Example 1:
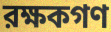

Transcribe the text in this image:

রক্ষকগণ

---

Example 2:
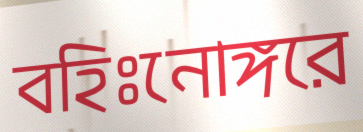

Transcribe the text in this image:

বহিঃনোঙ্গরে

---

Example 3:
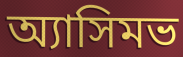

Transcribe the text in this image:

অ্যাসিমভ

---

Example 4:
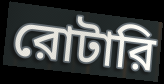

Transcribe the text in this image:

রোটারি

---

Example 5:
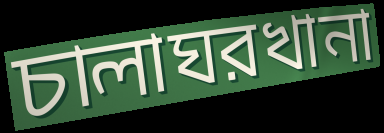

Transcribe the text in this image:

চালাঘরখানা